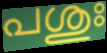
പശുഃ